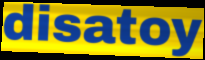
disatoy